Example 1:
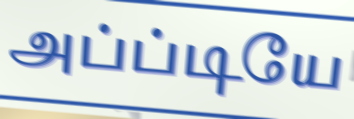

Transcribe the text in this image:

அப்ப்டியே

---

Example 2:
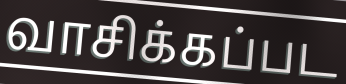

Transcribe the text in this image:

வாசிக்கப்பட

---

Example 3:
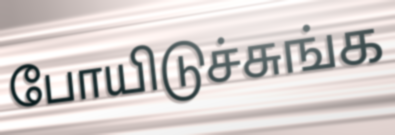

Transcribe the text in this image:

போயிடுச்சுங்க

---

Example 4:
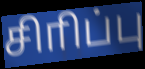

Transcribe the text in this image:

சிரிப்பு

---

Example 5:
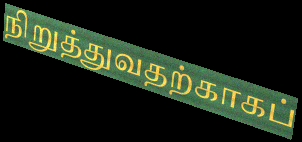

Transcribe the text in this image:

நிறுத்துவதற்காகப்